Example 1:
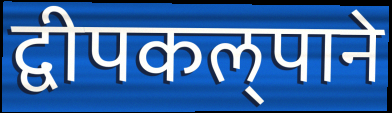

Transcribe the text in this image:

द्वीपकल्पाने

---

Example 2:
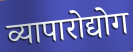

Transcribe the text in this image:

व्यापारोद्योग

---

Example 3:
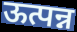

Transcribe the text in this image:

ऊत्पन्न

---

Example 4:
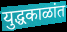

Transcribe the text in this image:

युद्धकाळांत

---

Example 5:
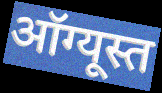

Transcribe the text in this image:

ऑग्यूस्त